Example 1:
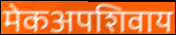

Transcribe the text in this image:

मेकअपशिवाय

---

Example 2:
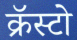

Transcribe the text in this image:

क्रॅस्टो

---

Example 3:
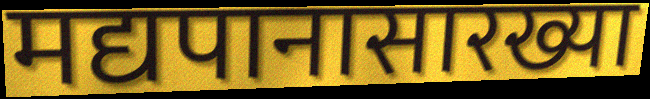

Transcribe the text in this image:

मद्यपानासारख्या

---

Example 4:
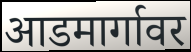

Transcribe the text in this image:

आडमार्गावर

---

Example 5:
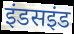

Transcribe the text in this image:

इंडसइंड